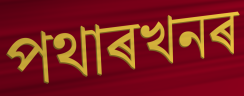
পথাৰখনৰ